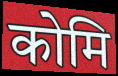
कोमि